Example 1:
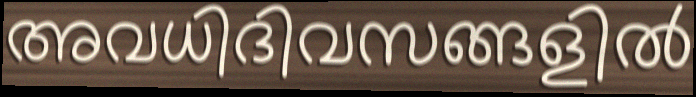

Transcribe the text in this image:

അവധിദിവസങ്ങളിൽ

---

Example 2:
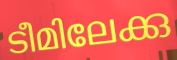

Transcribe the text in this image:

ടീമിലേക്കു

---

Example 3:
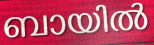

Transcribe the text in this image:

ബായിൽ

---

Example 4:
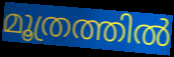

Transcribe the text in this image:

മൂത്രത്തിൽ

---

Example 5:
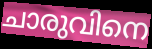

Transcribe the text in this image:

ചാരുവിനെ